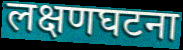
लक्षणघटना